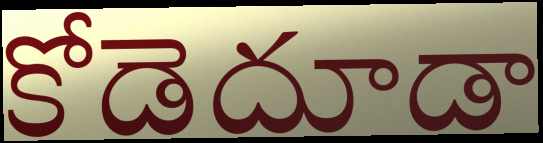
కోడెదూడా